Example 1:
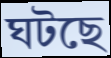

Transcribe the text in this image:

ঘটছে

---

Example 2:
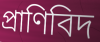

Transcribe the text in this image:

প্রাণিবিদ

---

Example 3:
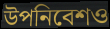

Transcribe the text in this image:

উপনিবেশও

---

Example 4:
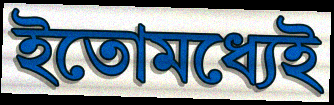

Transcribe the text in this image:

ইতোমধ্যেই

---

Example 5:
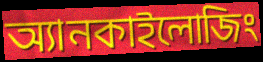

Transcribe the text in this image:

অ্যানকাইলোজিং